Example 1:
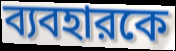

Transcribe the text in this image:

ব্যবহারকে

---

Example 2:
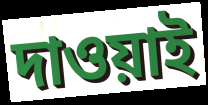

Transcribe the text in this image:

দাওয়াই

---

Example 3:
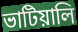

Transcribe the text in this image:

ভাটিয়ালি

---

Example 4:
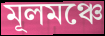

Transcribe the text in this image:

মূলমঞ্চে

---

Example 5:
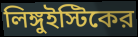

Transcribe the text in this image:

লিঙ্গুইস্টিকের